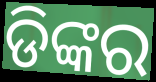
ଡିଙ୍କର